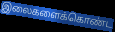
இலைகளைக்கொண்ட